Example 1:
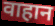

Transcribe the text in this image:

वाहान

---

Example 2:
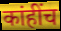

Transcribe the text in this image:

कांहींच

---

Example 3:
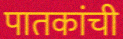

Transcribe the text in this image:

पातकांची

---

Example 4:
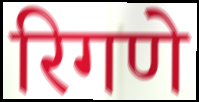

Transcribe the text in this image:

रिगणे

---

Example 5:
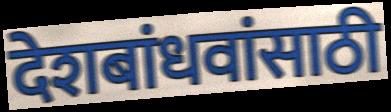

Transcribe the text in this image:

देशबांधवांसाठी